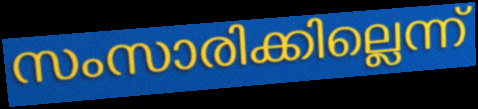
സംസാരിക്കില്ലെന്ന്